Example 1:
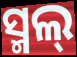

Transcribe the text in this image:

ସ୍ମଲ୍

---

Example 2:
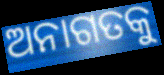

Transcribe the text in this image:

ଅନାଗତକୁ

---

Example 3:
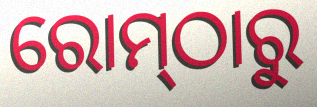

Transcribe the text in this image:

ରୋମ୍‌ଠାରୁ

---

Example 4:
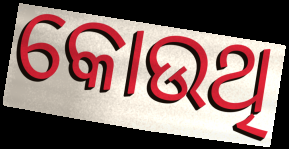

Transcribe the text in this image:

କୋଉଥି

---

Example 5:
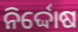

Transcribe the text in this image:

ନିର୍ଦ୍ଦୋଷ